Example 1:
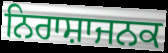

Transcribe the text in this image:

ਨਿਰਾਸ਼ਾਜਨਕ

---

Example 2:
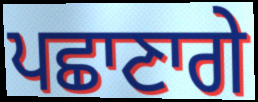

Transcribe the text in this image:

ਪਛਾਣਾਗੇ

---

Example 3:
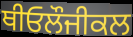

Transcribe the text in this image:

ਥੀਓਲੌਜੀਕਲ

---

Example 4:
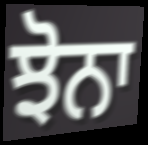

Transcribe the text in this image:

ਝੋਨਾ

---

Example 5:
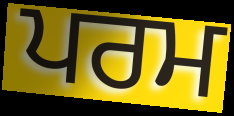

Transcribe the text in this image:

ਪਰਮ